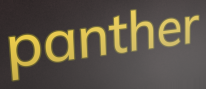
panther